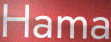
Hama